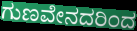
ಗುಣವೇನದರಿಂದ